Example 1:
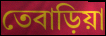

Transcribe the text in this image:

তেবাড়িয়া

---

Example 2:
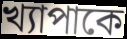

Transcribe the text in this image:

খ্যাপাকে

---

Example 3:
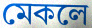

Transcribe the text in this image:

মেকলে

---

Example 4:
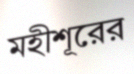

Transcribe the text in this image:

মহীশূরের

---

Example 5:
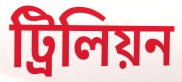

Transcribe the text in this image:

ট্রিলিয়ন